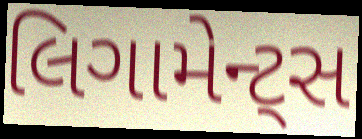
લિગામેન્ટ્સ